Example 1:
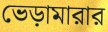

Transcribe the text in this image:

ভেড়ামারার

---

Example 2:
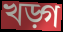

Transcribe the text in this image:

খড়্গ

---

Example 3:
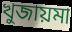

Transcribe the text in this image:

খুজায়মা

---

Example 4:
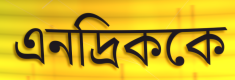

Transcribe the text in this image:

এনদ্রিককে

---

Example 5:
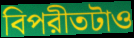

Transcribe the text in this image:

বিপরীতটাও